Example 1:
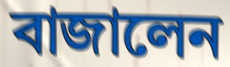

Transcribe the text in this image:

বাজালেন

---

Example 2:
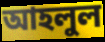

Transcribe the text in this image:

আহলুল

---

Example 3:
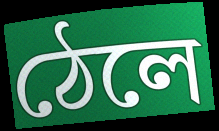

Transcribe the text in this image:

ঠেলে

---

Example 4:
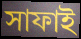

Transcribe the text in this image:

সাফাই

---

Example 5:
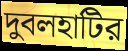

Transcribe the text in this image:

দুবলহাটির